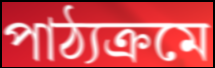
পাঠ্যক্রমে